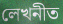
লেখনীত